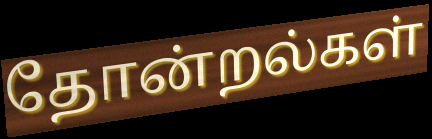
தோன்றல்கள்